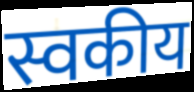
स्वकीय